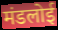
मंडलोई